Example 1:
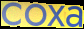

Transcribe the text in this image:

coxa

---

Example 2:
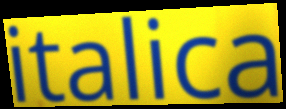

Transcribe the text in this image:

italica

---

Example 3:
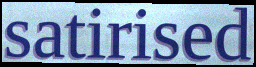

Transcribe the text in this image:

satirised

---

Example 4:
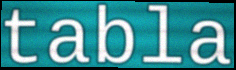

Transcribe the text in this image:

tabla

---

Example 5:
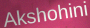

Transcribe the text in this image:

Akshohini